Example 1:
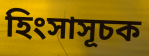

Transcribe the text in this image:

হিংসাসূচক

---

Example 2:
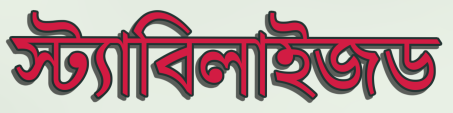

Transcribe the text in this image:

স্ট্যাবিলাইজড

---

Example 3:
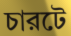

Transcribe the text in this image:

চারটে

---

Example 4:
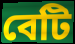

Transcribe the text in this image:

বেটি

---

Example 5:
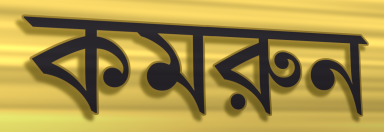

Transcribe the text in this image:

কমরুন